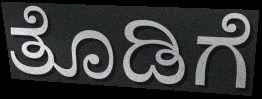
ತೊಡಿಗೆ